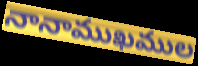
నానాముఖముల